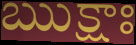
ఋక్షాః